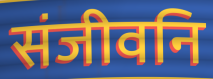
संजीवनि